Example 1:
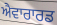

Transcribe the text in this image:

ਐਵਾਰਾਰਡ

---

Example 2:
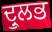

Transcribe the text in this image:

ਦ੍ਰੁਲਭ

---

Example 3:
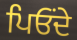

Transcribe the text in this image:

ਪਿਓਂਦੇ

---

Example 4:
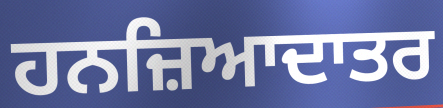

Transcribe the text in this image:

ਹਨਜ਼ਿਆਦਾਤਰ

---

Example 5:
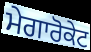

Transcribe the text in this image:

ਮੇਗਾਰੋਕੇਟ